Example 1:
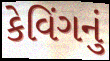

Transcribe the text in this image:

કેવિંગનું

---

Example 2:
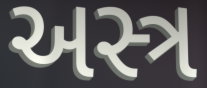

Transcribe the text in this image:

અસ્ત્ર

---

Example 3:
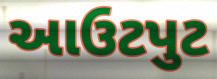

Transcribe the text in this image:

આઉટપુટ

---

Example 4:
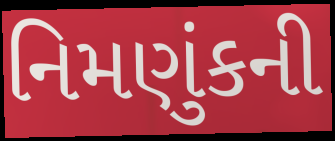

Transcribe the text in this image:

નિમણુંકની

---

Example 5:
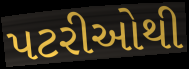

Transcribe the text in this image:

પટરીઓથી